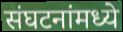
संघटनांमध्ये